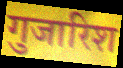
गुजारिश